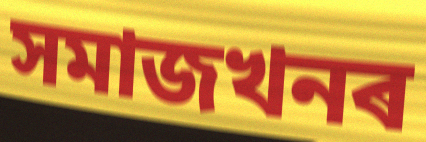
সমাজখনৰ